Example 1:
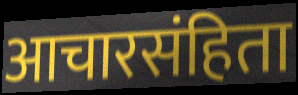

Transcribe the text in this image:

आचारसंहिता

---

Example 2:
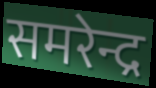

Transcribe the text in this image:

समरेन्द्र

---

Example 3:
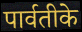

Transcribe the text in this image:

पार्वतीके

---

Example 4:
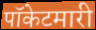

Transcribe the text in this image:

पॉकेटमारी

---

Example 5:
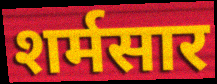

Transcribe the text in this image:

शर्मसार